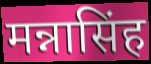
मन्नासिंह